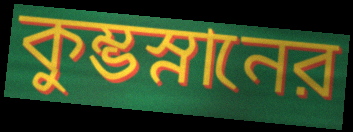
কুম্ভস্নানের